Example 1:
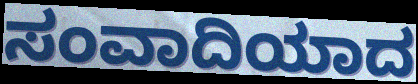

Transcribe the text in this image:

ಸಂವಾದಿಯಾದ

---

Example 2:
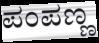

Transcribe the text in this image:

ಪಂಪಣ್ಣ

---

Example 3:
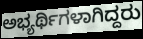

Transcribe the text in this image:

ಅಭ್ಯರ್ಥಿಗಳಾಗಿದ್ದರು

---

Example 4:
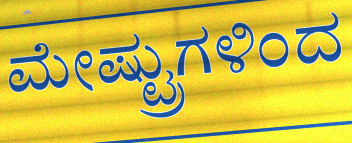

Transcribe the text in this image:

ಮೇಷ್ಟ್ರುಗಳಿಂದ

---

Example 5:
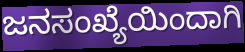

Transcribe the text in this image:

ಜನಸಂಖ್ಯೆಯಿಂದಾಗಿ